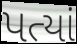
પત્યાં